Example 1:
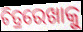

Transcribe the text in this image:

ଚିତ୍ରରେଖାକୁ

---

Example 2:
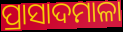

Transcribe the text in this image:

ପ୍ରାସାଦମାଳା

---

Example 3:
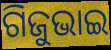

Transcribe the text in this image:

ଗିଜୁଭାଇ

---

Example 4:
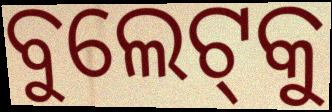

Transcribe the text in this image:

ବୁଲେଟ୍‌କୁ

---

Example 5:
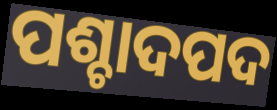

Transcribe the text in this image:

ପଶ୍ଚାଦପଦ